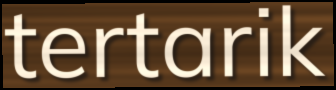
tertarik